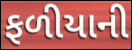
ફળીયાની